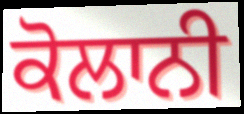
ਕੋਲਾਨੀ